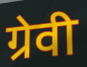
ग्रेवी